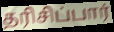
தரிசிப்பார்